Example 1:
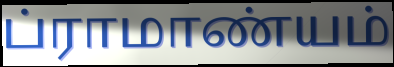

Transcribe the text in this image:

ப்ராமாண்யம்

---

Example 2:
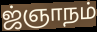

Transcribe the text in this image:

ஜ்ஞாநம்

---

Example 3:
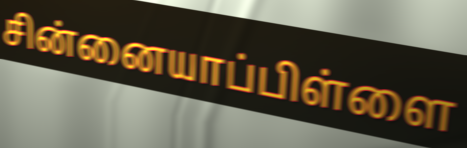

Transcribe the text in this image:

சின்னையாப்பிள்ளை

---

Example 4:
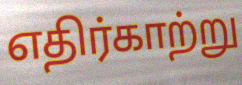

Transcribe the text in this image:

எதிர்காற்று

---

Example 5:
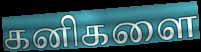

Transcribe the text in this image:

கனிகளை